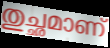
തുച്ഛമാണ്